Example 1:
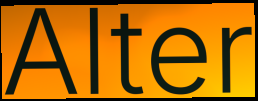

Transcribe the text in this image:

Alter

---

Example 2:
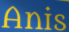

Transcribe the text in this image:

Anis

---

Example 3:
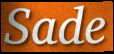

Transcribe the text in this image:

Sade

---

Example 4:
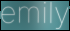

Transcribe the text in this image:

emily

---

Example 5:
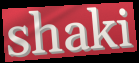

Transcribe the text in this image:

shaki